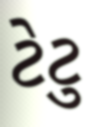
ટેટુ